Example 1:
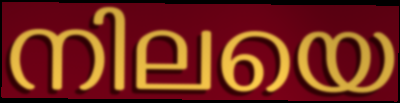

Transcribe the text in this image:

നിലയെ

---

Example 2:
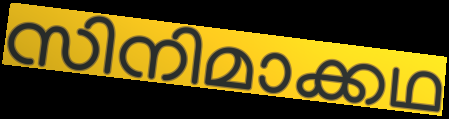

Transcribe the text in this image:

സിനിമാക്കഥ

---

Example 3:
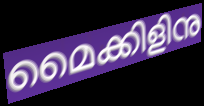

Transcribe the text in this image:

മൈക്കിളിനു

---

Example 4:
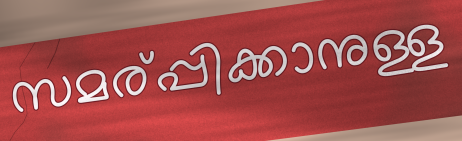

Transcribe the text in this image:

സമര്പ്പിക്കാനുള്ള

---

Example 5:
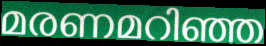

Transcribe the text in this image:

മരണമറിഞ്ഞ